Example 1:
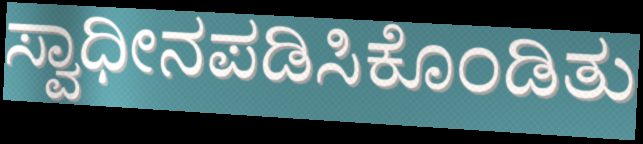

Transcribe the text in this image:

ಸ್ವಾಧೀನಪಡಿಸಿಕೊಂಡಿತು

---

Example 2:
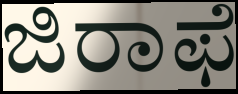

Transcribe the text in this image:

ಜಿರಾಫೆ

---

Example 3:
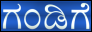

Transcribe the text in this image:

ಗಂಡಿಗೆ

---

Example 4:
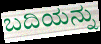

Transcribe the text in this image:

ಬದಿಯನ್ನು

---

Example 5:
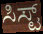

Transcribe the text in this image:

ಸಿಸ್ಟ್